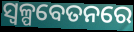
ସ୍ୱଳ୍ପବେତନରେ